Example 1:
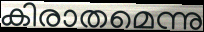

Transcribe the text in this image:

കിരാതമെന്നു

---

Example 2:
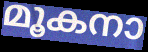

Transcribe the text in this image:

മൂകനാ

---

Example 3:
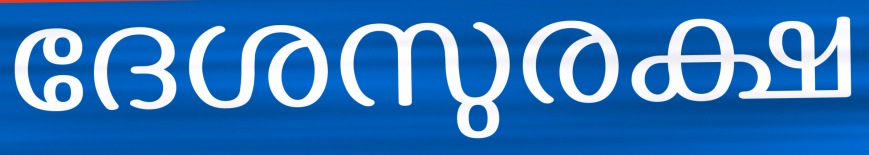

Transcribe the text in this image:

ദേശസുരക്ഷ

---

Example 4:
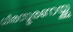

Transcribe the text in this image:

ധീരസ്മരണയ്ക്കു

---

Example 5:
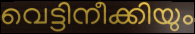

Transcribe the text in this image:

വെട്ടിനീക്കിയും